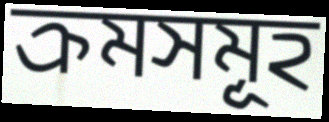
ক্ৰমসমূহ